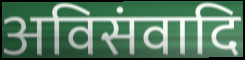
अविसंवादि